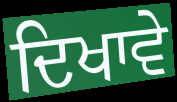
ਦਿਖਾਵੇ